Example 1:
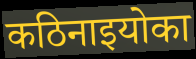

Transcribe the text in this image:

कठिनाइयोका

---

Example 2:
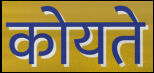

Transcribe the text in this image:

कोयते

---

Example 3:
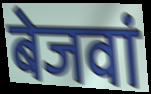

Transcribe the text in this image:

बेजवां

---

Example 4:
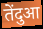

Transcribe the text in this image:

तेंदुआ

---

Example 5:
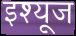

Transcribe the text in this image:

इश्यूज